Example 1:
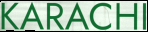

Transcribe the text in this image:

KARACHI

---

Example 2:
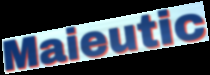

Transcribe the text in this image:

Maieutic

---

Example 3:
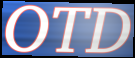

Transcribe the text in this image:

OTD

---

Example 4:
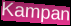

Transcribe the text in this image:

Kampan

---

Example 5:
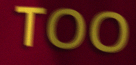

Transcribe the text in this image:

TOO